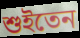
শুইতেন